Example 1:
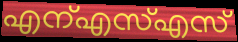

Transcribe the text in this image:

എന്എസ്എസ്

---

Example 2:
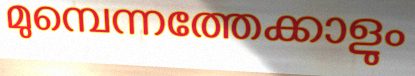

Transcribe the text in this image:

മുമ്പെന്നത്തേക്കാളും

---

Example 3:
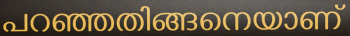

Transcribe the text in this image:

പറഞ്ഞതിങ്ങനെയാണ്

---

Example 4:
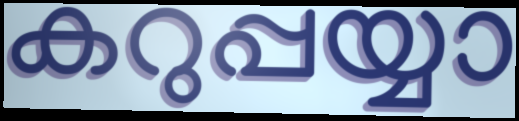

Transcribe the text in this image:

കറുപ്പയ്യാ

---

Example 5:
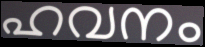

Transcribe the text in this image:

ഹവനം